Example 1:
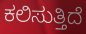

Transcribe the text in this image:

ಕಲಿಸುತ್ತಿದೆ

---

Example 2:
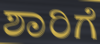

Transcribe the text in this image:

ಶಾರಿಗೆ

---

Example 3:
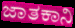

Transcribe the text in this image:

ಜಾತಕಾನಿ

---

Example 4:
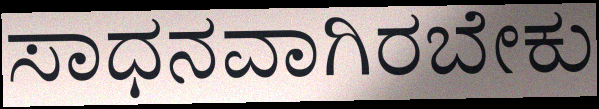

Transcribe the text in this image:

ಸಾಧನವಾಗಿರಬೇಕು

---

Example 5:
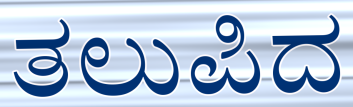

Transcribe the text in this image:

ತಲುಪಿದ